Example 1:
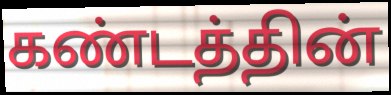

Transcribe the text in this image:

கண்டத்தின்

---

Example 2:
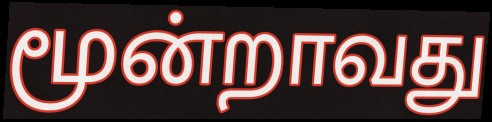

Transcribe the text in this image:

மூன்றாவது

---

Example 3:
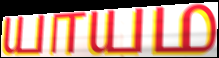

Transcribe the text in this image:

யாயம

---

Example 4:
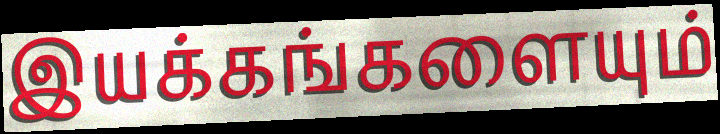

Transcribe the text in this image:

இயக்கங்களையும்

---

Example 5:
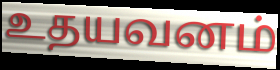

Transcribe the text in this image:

உதயவனம்